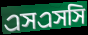
এসএসসি